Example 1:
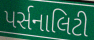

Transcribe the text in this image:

પર્સનાલિટી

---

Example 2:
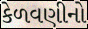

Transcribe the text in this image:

કેળવણીનો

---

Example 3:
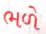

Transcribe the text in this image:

ભળે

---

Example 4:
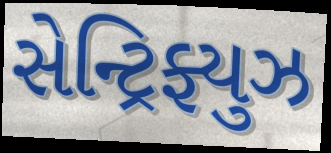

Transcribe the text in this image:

સેન્ટ્રિફ્યુઝ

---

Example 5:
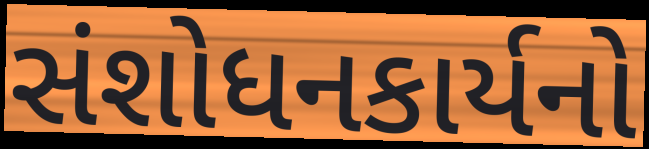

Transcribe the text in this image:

સંશોધનકાર્યનો